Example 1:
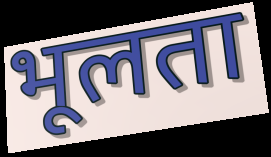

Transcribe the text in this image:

भूलता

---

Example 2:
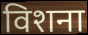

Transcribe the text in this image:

विशना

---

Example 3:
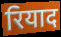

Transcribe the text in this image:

रियाद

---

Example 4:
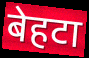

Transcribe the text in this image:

बेहटा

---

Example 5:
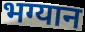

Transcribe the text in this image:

भग्यान